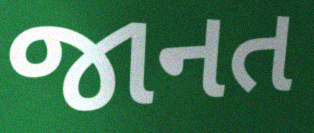
જાનત